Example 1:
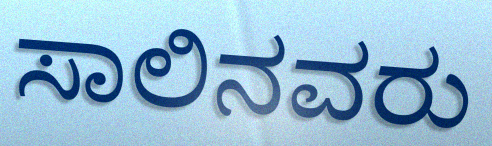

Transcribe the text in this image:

ಸಾಲಿನವರು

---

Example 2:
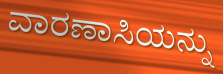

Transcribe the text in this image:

ವಾರಣಾಸಿಯನ್ನು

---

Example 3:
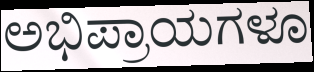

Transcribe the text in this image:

ಅಭಿಪ್ರಾಯಗಳೂ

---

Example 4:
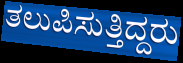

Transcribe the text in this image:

ತಲುಪಿಸುತ್ತಿದ್ದರು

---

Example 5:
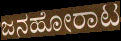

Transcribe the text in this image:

ಜನಹೋರಾಟ